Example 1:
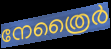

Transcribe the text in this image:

നേത്രൈർ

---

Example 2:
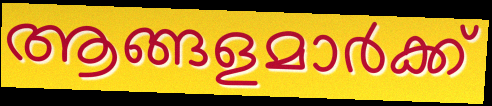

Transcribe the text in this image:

ആങ്ങളമാർക്ക്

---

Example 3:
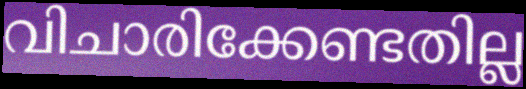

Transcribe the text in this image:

വിചാരിക്കേണ്ടതില്ല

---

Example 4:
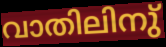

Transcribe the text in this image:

വാതിലിനു്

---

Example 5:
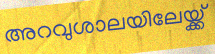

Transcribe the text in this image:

അറവുശാലയിലേയ്ക്ക്